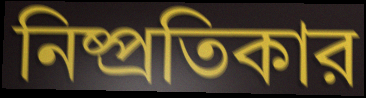
নিষ্প্রতিকার